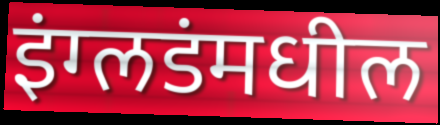
इंग्लडंमधील